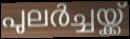
പുലർച്ചയ്ക്ക്